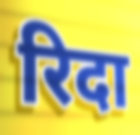
रिदा